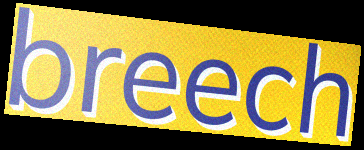
breech